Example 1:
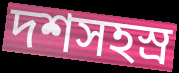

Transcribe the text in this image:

দশসহস্র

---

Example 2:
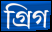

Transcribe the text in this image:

গ্রিগ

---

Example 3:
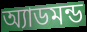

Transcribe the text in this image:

অ্যাডমন্ড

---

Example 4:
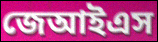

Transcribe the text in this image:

জেআইএস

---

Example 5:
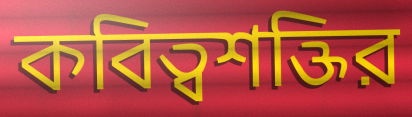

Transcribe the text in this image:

কবিত্বশক্তির